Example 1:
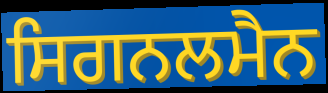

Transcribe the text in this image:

ਸਿਗਨਲਮੈਨ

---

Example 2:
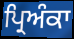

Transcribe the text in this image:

ਪ੍ਰਿਅੰਕਾ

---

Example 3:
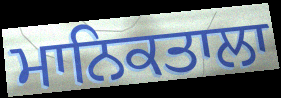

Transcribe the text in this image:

ਮਾਨਿਕਤਾਲਾ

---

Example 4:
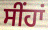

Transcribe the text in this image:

ਸੀਂਹਾਂ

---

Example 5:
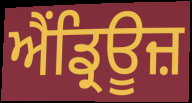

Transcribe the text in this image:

ਐਂਡ੍ਰਿਊਜ਼